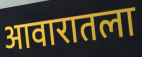
आवारातला